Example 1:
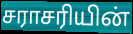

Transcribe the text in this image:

சராசரியின்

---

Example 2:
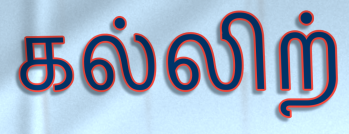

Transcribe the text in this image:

கல்லிற்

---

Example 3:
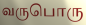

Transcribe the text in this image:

வருபொரு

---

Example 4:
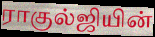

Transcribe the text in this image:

ராகுல்ஜியின்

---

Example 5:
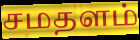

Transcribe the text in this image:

சமதளம்